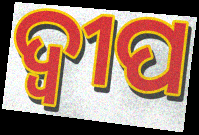
ଦ୍ବୀପ